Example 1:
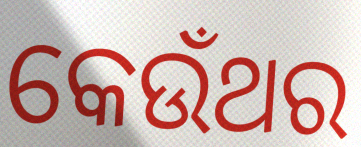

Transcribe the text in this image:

କେଉଁଥର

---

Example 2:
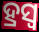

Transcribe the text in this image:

ହ୍ରସ୍ୱ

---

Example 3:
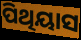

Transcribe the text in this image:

ପିଥିୟାସ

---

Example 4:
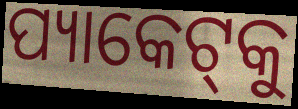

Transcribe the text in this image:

ପ୍ୟାକେଟ୍‌କୁ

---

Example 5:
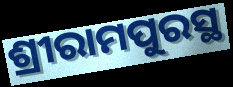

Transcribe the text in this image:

ଶ୍ରୀରାମପୁରସ୍ଥ